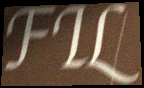
FIL